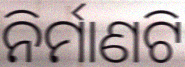
ନିର୍ମାଣଟି